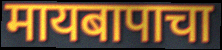
मायबापाचा